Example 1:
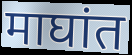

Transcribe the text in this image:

माघांत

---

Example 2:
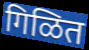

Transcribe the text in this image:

गिळित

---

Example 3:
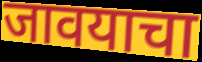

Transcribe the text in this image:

जावयाचा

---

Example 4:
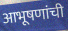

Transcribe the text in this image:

आभूषणांची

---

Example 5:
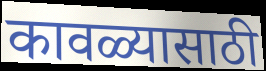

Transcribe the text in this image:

कावळ्यासाठी